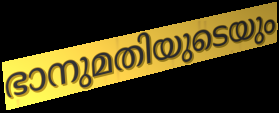
ഭാനുമതിയുടെയും